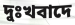
দুঃখবাদে